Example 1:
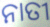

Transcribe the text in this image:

ନାତୀ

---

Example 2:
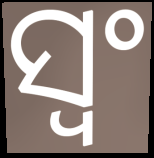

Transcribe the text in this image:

ସ୍ୱଂ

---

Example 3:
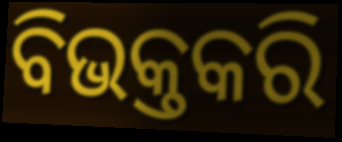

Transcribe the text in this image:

ବିଭକ୍ତକରି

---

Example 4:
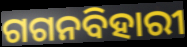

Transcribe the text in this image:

ଗଗନବିହାରୀ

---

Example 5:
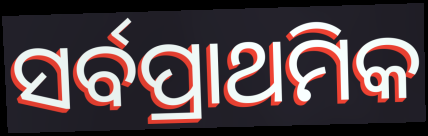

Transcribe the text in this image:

ସର୍ବପ୍ରାଥମିକ